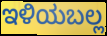
ಇಳಿಯಬಲ್ಲ